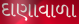
દાણાવાળા